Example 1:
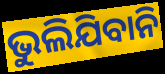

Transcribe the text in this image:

ଭୁଲିଯିବାନି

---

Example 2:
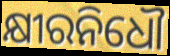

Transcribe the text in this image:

କ୍ଷୀରନିଧୌ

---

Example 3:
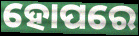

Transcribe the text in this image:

ହୋପରେ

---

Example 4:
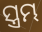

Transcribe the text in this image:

ସ୍ତ୍ରମ୍ଭ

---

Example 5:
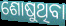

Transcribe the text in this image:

ଶୋଷୁଥିବା